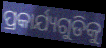
ପ୍ରକାର୍ଯ୍ୟଗୁଡିକୁ